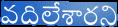
వదిలేశారని